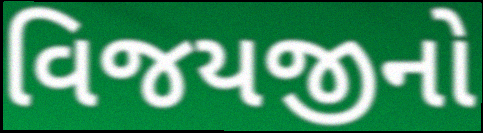
વિજયજીનો